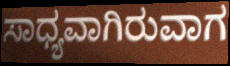
ಸಾಧ್ಯವಾಗಿರುವಾಗ